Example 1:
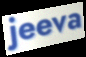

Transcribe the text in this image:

jeeva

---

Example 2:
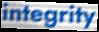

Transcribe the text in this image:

integrity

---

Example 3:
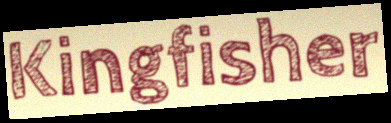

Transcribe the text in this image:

Kingfisher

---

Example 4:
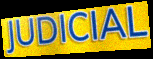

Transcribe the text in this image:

JUDICIAL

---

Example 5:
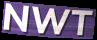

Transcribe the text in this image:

NWT